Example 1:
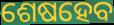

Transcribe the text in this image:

ଶେଷହେବ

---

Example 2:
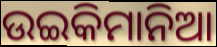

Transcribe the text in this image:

ଉଇକିମାନିଆ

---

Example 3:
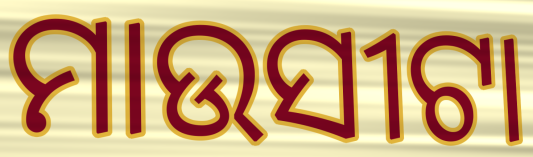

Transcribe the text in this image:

ମାଉସୀଟା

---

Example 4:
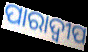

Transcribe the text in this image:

ପାରାଦ୍ୱୀପ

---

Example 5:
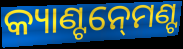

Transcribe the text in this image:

କ୍ୟାଣ୍ଟନ୍‍ମେଣ୍ଟ